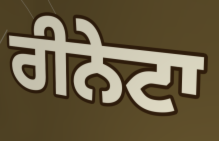
ਰੀਨੇਟਾ